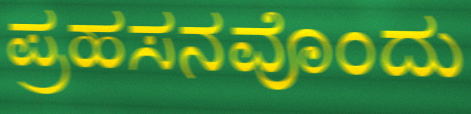
ಪ್ರಹಸನವೊಂದು